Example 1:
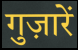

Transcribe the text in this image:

गुज़ारें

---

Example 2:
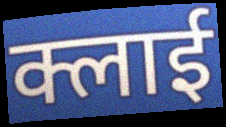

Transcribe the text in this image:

क्लाई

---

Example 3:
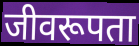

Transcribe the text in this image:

जीवरूपता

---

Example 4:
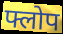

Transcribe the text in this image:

फ्लोप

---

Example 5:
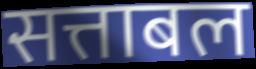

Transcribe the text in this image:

सत्ताबल